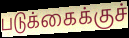
படுக்கைக்குச்